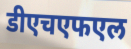
डीएचएफएल